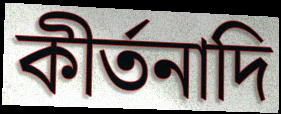
কীর্তনাদি